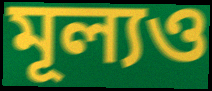
মূল্যও